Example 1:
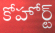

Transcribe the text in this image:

కోహోర్ట్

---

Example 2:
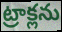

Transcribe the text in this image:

ట్రాక్లను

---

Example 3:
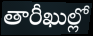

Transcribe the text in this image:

తారీఖుల్లో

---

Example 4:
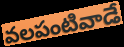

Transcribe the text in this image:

వలపంటివాడే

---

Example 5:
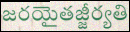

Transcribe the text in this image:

జరయైతజ్జీర్యతి